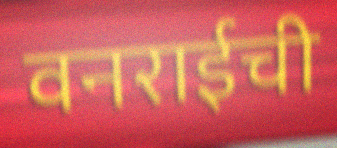
वनराईची